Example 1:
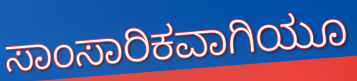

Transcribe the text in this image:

ಸಾಂಸಾರಿಕವಾಗಿಯೂ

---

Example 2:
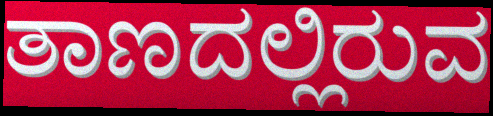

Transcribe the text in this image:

ತಾಣದಲ್ಲಿರುವ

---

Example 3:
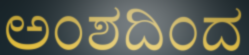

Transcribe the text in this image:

ಅಂಶದಿಂದ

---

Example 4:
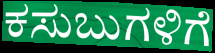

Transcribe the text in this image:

ಕಸುಬುಗಳಿಗೆ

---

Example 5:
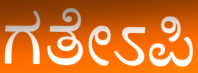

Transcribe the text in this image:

ಗತೇಽಪಿ